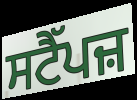
ਸਟੈੱਪਜ਼